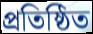
প্রতিষ্ঠিত